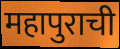
महापुराची